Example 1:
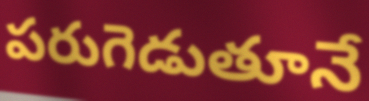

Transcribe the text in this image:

పరుగెడుతూనే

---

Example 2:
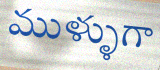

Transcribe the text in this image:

ముళ్ళుగా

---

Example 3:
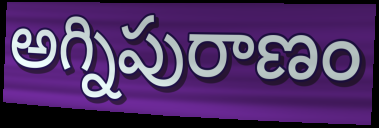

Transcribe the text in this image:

అగ్నిపురాణం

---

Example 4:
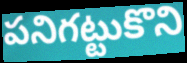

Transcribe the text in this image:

పనిగట్టుకొని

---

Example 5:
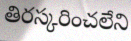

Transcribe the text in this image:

తిరస్కరించలేని